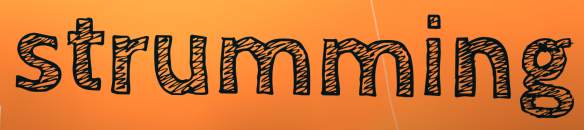
strumming